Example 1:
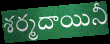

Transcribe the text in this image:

శర్మదాయినీ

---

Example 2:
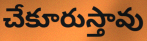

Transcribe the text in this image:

చేకూరుస్తావు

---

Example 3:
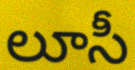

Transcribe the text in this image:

లూసీ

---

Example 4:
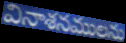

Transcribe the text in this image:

వినాశనములను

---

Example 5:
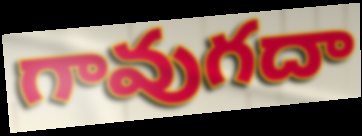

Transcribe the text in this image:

గావుగదా